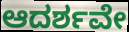
ಆದರ್ಶವೇ